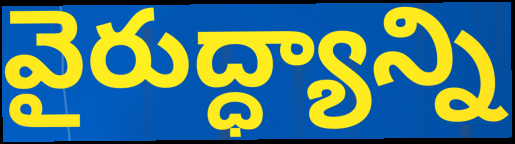
వైరుద్ధ్యాన్ని